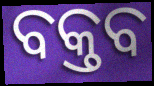
ବକ୍ତବ